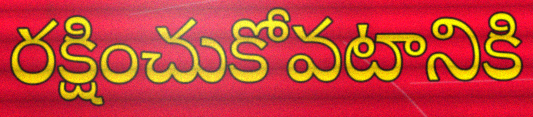
రక్షించుకోవటానికి